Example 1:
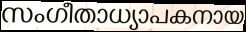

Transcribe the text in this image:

സംഗീതാധ്യാപകനായ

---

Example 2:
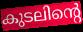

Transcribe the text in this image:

കുടലിന്റെ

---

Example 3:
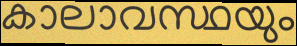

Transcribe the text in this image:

കാലാവസ്ഥയും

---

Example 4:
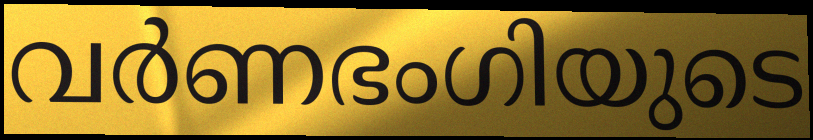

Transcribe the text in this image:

വർണഭംഗിയുടെ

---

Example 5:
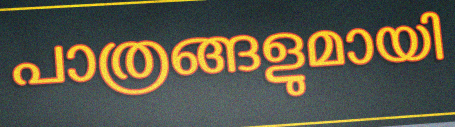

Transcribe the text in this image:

പാത്രങ്ങളുമായി